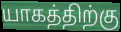
யாகத்திற்கு